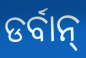
ଡର୍ବାନ୍